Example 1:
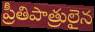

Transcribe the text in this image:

ప్రీతిపాత్రులైన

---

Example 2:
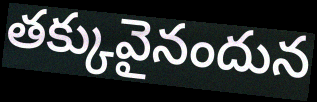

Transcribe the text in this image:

తక్కువైనందున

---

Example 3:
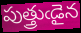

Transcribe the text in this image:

పుత్త్రుఁడైన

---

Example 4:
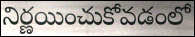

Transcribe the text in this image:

నిర్ణయించుకోవడంలో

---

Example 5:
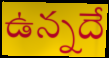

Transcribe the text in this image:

ఉన్నదే